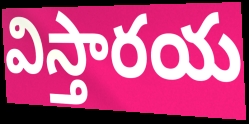
విస్తారయ